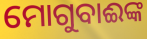
ମୋଗୁବାଈଙ୍କ